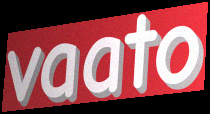
vaato